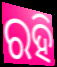
ରହି